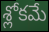
శ్లోకమే